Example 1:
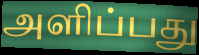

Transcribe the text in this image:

அளிப்பது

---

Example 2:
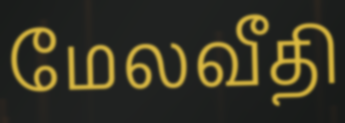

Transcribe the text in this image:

மேலவீதி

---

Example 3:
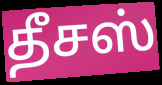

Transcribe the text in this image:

தீசஸ்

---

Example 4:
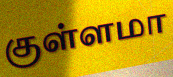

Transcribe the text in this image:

குள்ளமா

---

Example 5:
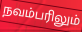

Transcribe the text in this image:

நவம்பரிலும்